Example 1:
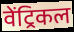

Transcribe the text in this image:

वेंट्रिकल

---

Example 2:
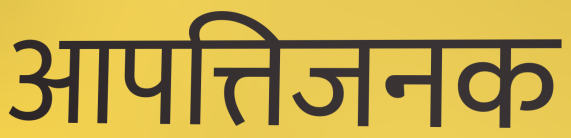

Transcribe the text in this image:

आपत्तिजनक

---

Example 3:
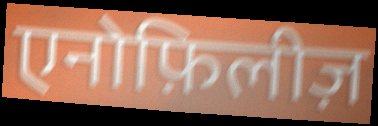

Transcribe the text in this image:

एनोफ़िलीज़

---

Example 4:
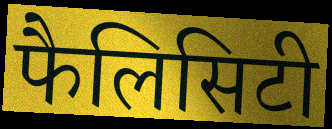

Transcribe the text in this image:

फैलिसिटी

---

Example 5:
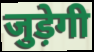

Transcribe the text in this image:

जुड़ेगी